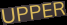
UPPER